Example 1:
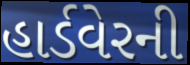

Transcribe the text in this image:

હાર્ડવેરની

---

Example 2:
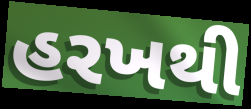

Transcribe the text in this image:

હરખથી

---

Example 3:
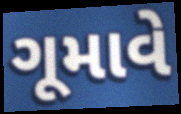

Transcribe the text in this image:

ગૂમાવે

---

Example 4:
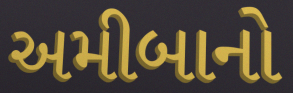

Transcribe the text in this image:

અમીબાનો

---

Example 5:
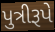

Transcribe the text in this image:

પુત્રીરૂપે